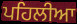
ਪਹਿਲੀਆ